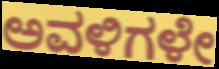
ಅವಳಿಗಳೇ